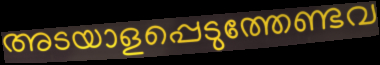
അടയാളപ്പെടുത്തേണ്ടവ